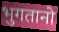
भुगतानो